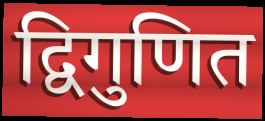
द्विगुणित